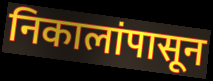
निकालांपासून